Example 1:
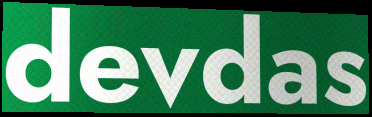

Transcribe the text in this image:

devdas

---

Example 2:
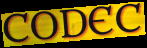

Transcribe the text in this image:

CODEC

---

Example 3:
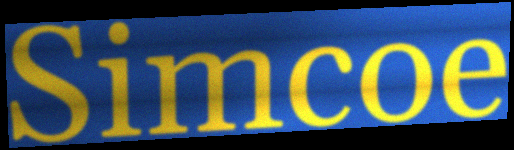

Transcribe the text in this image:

Simcoe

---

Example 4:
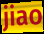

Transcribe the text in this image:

jiao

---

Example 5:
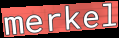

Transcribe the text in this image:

merkel